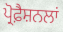
ਪ੍ਰੋਫ਼ੈਸ਼ਨਲਾਂ